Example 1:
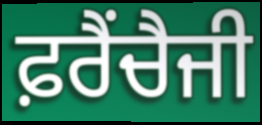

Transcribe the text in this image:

ਫ਼ਰੈਂਚੈਜੀ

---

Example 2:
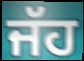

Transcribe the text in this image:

ਜੱਹ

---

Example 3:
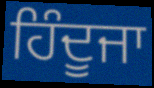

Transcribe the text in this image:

ਹਿੰਦੂਜਾ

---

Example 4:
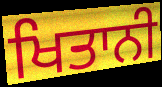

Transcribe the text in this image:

ਖਿਤਾਨੀ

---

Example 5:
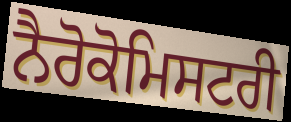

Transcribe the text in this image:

ਨੈਰੋਕੋਮਿਸਟਰੀ